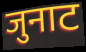
जुनाट